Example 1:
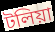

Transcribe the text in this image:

টলিয়া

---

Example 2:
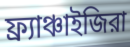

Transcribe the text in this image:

ফ্র্যাঞ্চাইজিরা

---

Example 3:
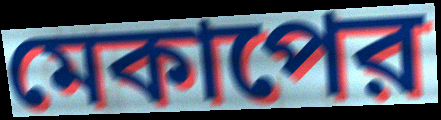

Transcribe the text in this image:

মেকাপের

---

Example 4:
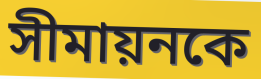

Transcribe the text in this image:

সীমায়নকে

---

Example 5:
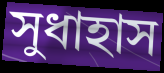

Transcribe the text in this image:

সুধাহাস